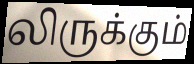
லிருக்கும்